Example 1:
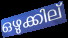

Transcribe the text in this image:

ഒഴുക്കില്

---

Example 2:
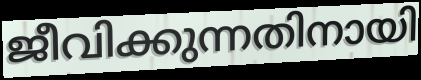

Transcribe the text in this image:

ജീവിക്കുന്നതിനായി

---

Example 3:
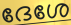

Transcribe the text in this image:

ദേശേ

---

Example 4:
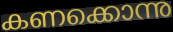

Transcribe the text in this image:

കണക്കൊന്നു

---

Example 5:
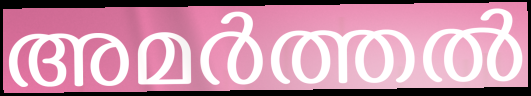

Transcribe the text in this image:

അമർത്തൽ